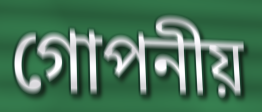
গোপনীয়